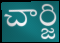
చార్జి